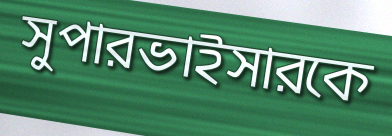
সুপারভাইসারকে